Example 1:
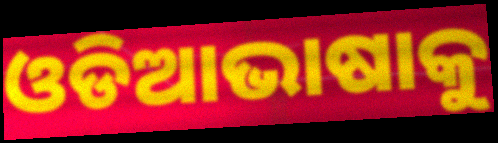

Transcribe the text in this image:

ଓଡିଆଭାଷାକୁ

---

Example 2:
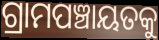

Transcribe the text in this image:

ଗ୍ରାମପଞ୍ଚାୟତକୁ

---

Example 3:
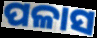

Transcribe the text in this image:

ପଳାସ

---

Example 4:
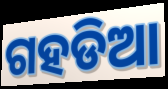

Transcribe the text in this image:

ଗହଡିଆ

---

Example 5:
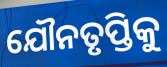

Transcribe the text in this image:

ଯୌନତୃପ୍ତିକୁ